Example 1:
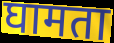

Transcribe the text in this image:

घामता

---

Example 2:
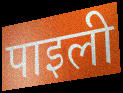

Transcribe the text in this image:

पाइली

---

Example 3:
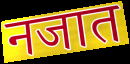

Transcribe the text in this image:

नजात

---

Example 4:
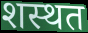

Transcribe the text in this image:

शस्थत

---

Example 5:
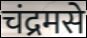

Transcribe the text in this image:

चंद्रमसे